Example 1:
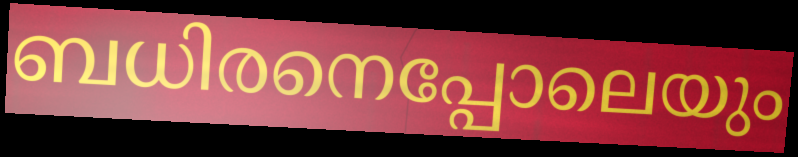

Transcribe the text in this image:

ബധിരനെപ്പോലെയും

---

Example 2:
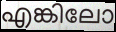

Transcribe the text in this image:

എങ്കിലോ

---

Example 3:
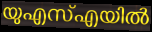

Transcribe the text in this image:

യുഎസ്എയിൽ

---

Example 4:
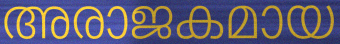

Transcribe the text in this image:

അരാജകമായ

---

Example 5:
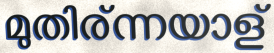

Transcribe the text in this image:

മുതിര്ന്നയാള്